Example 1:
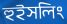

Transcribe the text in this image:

হুইসলিং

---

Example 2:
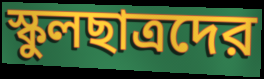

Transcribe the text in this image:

স্কুলছাত্রদের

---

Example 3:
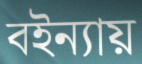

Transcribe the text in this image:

বইন্যায়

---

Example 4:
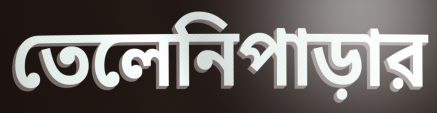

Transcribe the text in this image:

তেলেনিপাড়ার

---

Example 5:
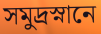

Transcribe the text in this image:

সমুদ্রস্নানে